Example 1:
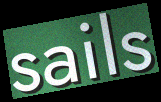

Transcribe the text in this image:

sails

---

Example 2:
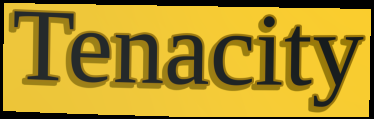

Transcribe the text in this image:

Tenacity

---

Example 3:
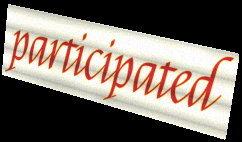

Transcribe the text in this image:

participated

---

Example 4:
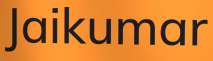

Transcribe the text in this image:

Jaikumar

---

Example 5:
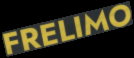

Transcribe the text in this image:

FRELIMO